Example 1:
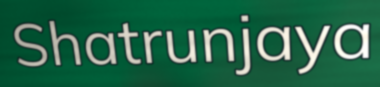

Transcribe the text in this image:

Shatrunjaya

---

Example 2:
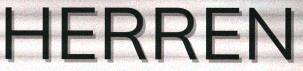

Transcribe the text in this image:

HERREN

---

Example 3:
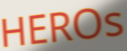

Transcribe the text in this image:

HEROs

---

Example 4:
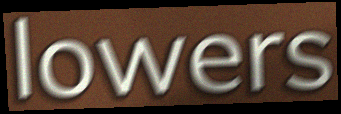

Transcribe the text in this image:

lowers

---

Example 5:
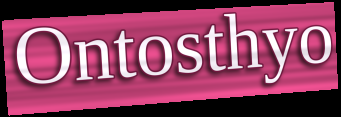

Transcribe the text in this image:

Ontosthyo